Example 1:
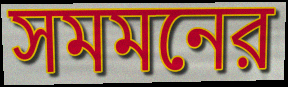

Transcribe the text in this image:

সমমনের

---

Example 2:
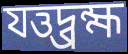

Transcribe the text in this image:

যত্তদ্ব্রহ্ম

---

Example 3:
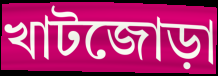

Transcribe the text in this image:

খাটজোড়া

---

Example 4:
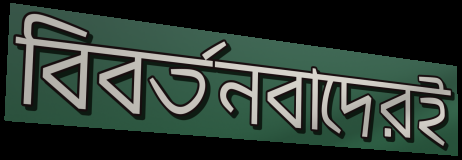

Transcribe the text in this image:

বিবর্তনবাদেরই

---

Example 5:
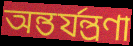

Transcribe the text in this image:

অন্তর্যন্ত্রণা